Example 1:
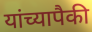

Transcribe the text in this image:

यांच्यापैकी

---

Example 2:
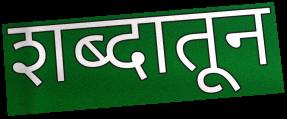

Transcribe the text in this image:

शब्दातून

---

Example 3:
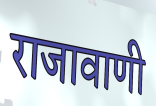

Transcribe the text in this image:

राजावाणी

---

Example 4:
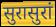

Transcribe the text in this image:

सुरासुरां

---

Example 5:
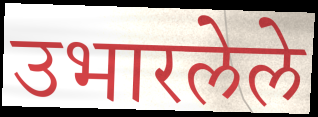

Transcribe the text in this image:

उभारलेले